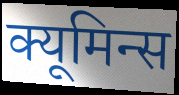
क्यूमिन्स